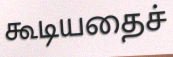
கூடியதைச்